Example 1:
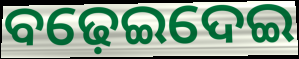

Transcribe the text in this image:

ବଢ଼େଇଦେଇ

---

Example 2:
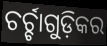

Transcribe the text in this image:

ଚର୍ଚ୍ଚାଗୁଡ଼ିକର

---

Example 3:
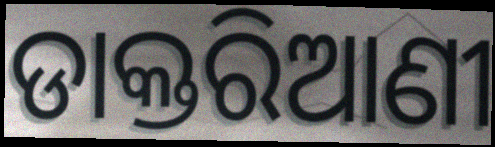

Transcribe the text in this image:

ଡାକ୍ତରିଆଣୀ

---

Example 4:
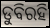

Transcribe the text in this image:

ଡୁବିରହି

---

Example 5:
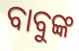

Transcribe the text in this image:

ବାବୁଙ୍କ